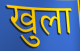
खुला